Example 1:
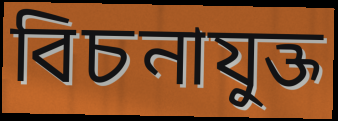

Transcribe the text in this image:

বিচনাযুক্ত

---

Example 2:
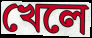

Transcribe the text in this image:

খেলে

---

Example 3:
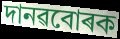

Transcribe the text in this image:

দানৱবোৰক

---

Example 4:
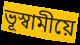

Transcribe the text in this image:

ভূস্বামীয়ে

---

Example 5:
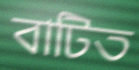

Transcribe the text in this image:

বাটিত